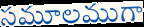
సమూలముగా